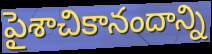
పైశాచికానందాన్ని